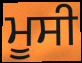
ਮੂਸੀ